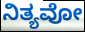
ನಿತ್ಯವೋ